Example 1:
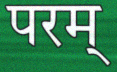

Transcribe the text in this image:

परम्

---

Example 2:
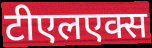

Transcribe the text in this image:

टीएलएक्स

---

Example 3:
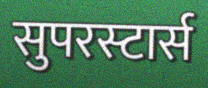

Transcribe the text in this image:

सुपरस्‍टार्स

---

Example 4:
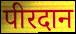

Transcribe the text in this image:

पीरदान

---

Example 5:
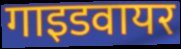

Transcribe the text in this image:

गाइडवायर